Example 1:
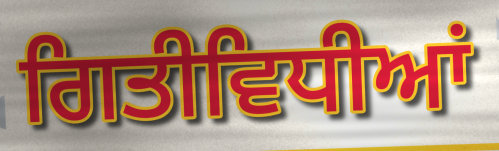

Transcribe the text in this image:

ਗਿਤੀਵਿਧੀਆਂ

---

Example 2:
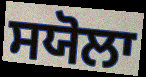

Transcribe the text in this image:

ਸਯੋਲਾ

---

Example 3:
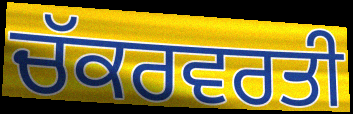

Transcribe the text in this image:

ਚੱਕਰਵਰਤੀ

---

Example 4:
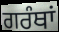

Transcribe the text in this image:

ਗਰੰਥਾਂ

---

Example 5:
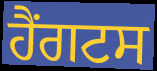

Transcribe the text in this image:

ਹੈਂਗਟਸ